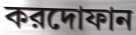
করদোফান